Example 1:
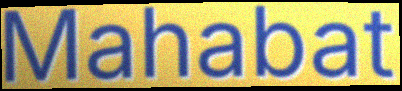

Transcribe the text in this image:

Mahabat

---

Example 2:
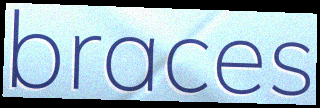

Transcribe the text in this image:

braces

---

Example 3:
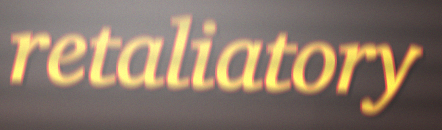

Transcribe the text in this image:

retaliatory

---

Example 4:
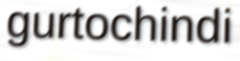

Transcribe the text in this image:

gurtochindi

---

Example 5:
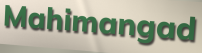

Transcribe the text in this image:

Mahimangad